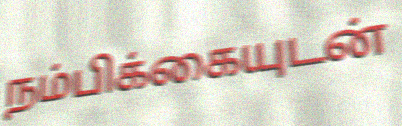
நம்பிக்கையுடன்